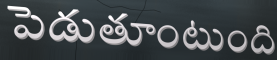
పెడుతూంటుంది